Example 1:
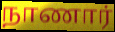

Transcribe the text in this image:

நாணார்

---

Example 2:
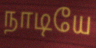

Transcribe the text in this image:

நாடியே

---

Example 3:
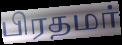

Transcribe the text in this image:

பிரதமர்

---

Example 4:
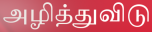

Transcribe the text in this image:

அழித்துவிடு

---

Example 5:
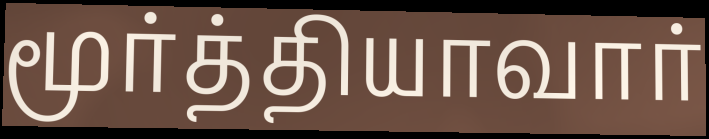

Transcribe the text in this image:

மூர்த்தியாவார்